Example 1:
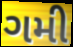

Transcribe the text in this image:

ગમી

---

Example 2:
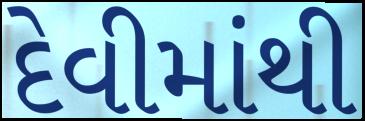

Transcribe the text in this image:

દેવીમાંથી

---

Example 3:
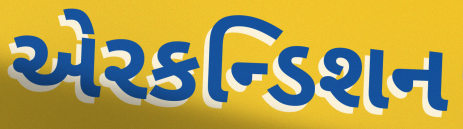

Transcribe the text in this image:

એરકન્ડિશન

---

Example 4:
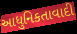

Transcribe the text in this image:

આધુનિકતાવાદી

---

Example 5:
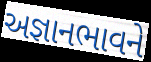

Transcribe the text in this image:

અજ્ઞાનભાવને